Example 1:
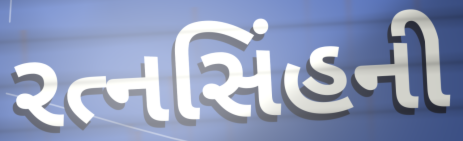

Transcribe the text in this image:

રત્નસિંહની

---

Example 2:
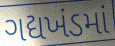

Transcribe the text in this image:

ગદ્યખંડમાં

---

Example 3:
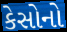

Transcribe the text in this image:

કેસોનો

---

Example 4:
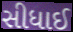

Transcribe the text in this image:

સીધાઈ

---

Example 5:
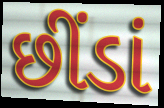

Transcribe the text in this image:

છીંડાં